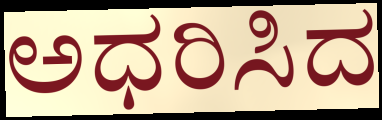
ಅಧರಿಸಿದ